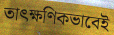
তাৎক্ষণিকভাবেই